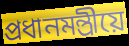
প্ৰধানমন্ত্ৰীয়ে